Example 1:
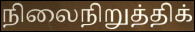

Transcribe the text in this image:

நிலைநிறுத்திக்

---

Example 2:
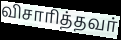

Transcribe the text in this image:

விசாரித்தவர்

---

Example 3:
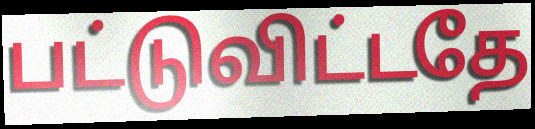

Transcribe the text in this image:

பட்டுவிட்டதே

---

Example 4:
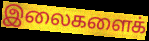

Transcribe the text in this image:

இலைகளைக்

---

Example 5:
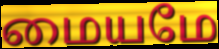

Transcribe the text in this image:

மையமே